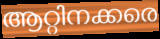
ആറ്റിനക്കരെ